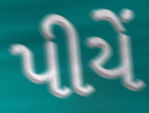
પીયેં